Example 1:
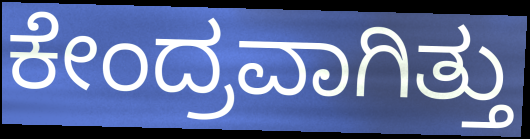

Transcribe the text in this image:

ಕೇಂದ್ರವಾಗಿತ್ತು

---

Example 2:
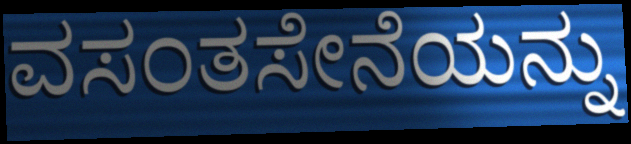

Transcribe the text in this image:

ವಸಂತಸೇನೆಯನ್ನು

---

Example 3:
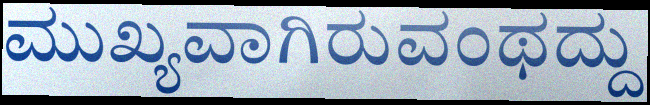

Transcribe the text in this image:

ಮುಖ್ಯವಾಗಿರುವಂಥದ್ದು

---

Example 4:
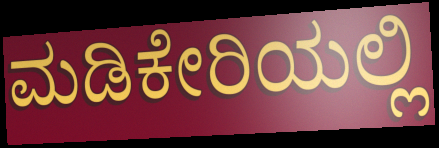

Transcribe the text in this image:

ಮಡಿಕೇರಿಯಲ್ಲಿ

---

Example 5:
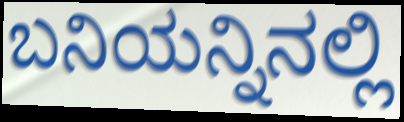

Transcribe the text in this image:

ಬನಿಯನ್ನಿನಲ್ಲಿ